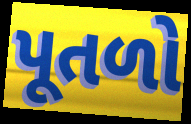
પૂતળો